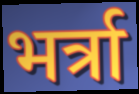
भर्त्रा